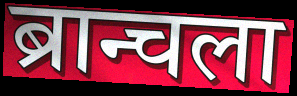
ब्रान्चला